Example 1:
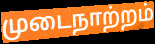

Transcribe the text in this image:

முடைநாற்றம்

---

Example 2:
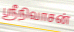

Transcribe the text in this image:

ஸ்ரீநிவாசன்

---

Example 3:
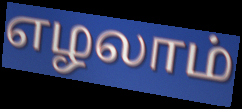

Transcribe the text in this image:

எழலாம்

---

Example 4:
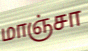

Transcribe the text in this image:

மாஞ்சா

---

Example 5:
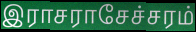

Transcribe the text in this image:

இராசராசேச்சரம்